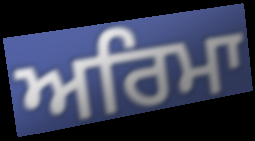
ਅਰਿਮਾ